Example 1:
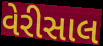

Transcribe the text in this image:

વેરીસાલ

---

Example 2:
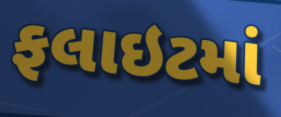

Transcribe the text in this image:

ફલાઇટમાં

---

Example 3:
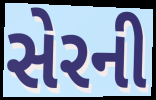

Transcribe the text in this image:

સેરની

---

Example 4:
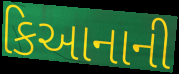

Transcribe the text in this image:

કિઆનાની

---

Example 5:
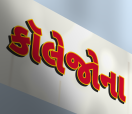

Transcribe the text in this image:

કૉલેજોના